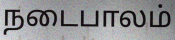
நடைபாலம்